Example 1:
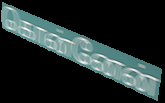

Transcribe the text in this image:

கொன்னேன்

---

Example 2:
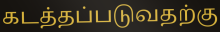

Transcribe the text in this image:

கடத்தப்படுவதற்கு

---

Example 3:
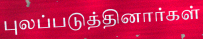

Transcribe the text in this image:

புலப்படுத்தினார்கள்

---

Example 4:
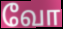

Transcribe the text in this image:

வோ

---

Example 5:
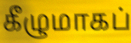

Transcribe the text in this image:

கீழுமாகப்